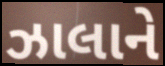
ઝાલાને